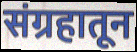
संग्रहातून